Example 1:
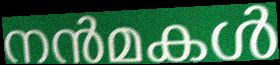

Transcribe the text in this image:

നൻമകൾ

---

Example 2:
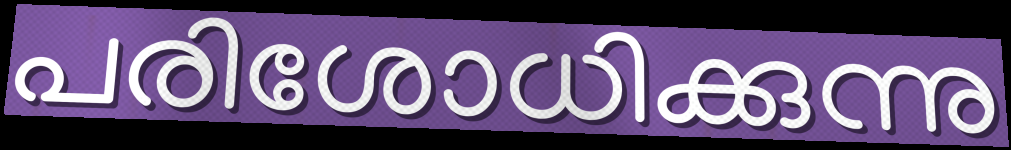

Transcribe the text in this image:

പരിശോധിക്കുന്നു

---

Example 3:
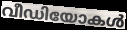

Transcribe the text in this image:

വീഡിയോകൾ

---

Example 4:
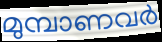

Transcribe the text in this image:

മുമ്പാണവർ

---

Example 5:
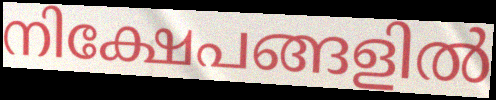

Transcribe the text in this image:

നിക്ഷേപങ്ങളിൽ